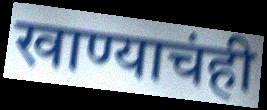
खाण्याचंही